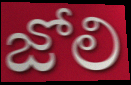
జోలి